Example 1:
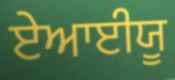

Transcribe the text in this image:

ਏਆਈਯੂ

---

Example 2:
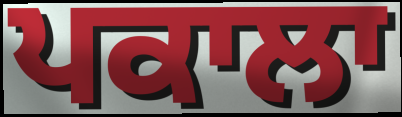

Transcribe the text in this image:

ਪਕਾਲਾ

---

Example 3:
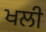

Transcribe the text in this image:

ਖਲੀ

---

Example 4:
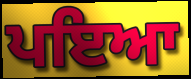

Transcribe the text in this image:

ਪਇਆ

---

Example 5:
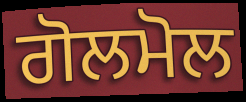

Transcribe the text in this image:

ਗੋਲਮੋਲ